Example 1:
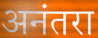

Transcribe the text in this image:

अनंतरा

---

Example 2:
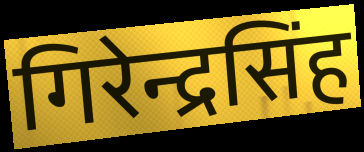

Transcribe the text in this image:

गिरेन्द्रसिंह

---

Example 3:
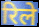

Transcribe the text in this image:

रिले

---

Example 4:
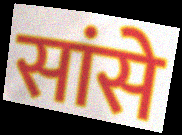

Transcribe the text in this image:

सांसे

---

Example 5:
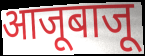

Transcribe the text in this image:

आजूबाजू